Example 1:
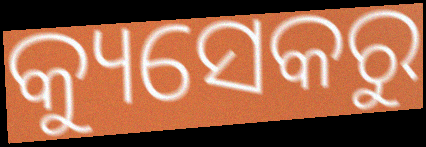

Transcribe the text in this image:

କ୍ୟୁସେକରୁ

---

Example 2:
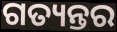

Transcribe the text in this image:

ଗତ୍ୟନ୍ତର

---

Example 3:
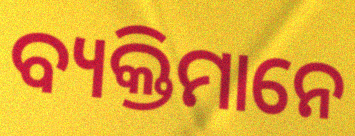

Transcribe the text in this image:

ବ୍ୟକ୍ତିମାନେ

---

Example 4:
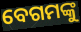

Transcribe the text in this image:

ବେଗମଙ୍କୁ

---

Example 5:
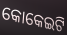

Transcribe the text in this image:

କୋକେଇଟି